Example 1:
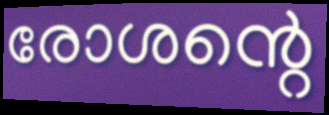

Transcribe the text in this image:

രോശന്റെ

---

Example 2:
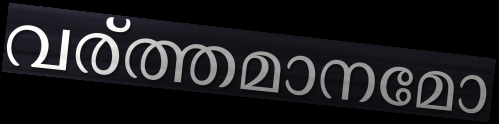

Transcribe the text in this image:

വര്ത്തമാനമോ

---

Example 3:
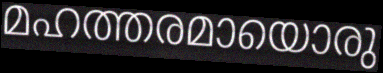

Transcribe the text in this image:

മഹത്തരമായൊരു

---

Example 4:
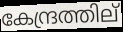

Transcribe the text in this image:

കേന്ദ്രത്തില്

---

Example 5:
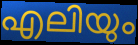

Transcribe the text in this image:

എലിയും